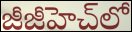
జీజీహెచ్‌లో